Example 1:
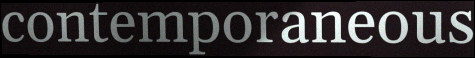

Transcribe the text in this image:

contemporaneous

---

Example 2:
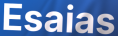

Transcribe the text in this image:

Esaias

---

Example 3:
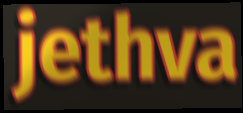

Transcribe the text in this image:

jethva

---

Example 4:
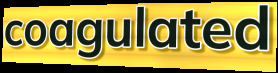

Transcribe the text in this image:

coagulated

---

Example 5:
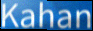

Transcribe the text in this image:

Kahan